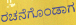
ರಚನೆಗೊಂಡಾಗ